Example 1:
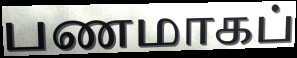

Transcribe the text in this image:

பணமாகப்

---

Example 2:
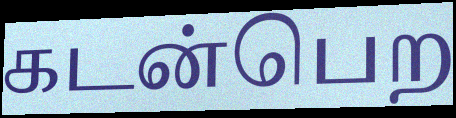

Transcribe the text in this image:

கடன்பெற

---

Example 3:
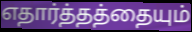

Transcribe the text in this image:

எதார்த்தத்தையும்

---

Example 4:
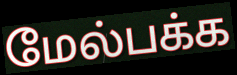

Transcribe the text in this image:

மேல்பக்க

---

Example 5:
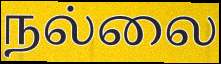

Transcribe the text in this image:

நல்லை